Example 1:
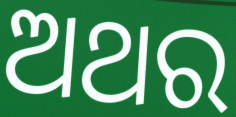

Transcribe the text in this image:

ଅଥର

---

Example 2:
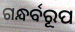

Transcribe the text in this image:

ଗନ୍ଧର୍ବରୂପ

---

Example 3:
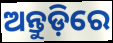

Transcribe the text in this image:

ଅନ୍ତୁଡ଼ିରେ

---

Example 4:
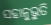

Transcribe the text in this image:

ସହାନୁଭୁତି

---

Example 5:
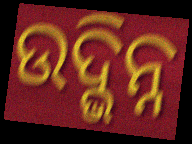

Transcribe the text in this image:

ଉଦ୍ଭିନ୍ନ